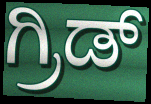
ಗ್ರಿಡ್